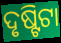
ଦୃଷ୍ଟିଟା